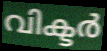
വിക്ടർ